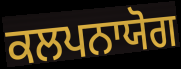
ਕਲਪਨਾਯੋਗ